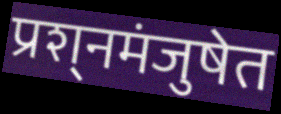
प्रश्नमंजुषेत